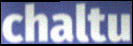
chaltu